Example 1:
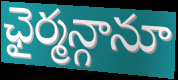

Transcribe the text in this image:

ఛైర్మన్గానూ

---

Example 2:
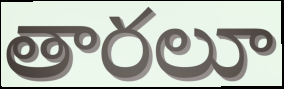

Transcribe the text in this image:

తారలూ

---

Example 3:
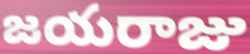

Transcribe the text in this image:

జయరాజు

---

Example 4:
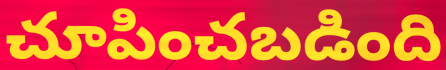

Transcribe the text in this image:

చూపించబడింది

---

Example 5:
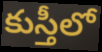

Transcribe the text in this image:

కుస్తీలో